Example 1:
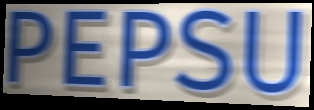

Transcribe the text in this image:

PEPSU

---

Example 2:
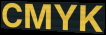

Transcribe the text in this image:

CMYK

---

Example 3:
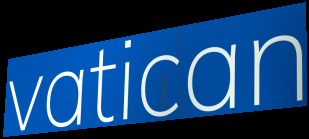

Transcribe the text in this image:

vatican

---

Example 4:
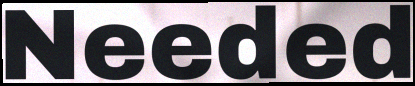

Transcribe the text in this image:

Needed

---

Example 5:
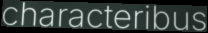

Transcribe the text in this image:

characteribus